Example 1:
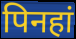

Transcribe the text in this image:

पिनहां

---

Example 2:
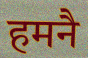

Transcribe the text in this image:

हमनै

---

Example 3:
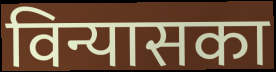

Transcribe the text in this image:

विन्यासका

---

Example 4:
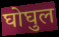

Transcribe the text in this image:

घोघुल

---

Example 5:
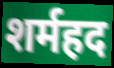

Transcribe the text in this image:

शर्महद